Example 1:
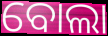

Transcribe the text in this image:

ବୋଲା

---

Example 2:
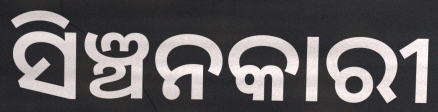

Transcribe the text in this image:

ସିଞ୍ଚନକାରୀ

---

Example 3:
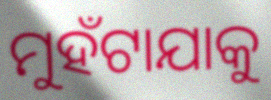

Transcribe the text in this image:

ମୁହଁଟାଯାକୁ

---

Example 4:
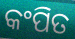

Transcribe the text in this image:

କଂପିତ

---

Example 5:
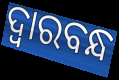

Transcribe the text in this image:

ଦ୍ବାରବନ୍ଧ